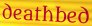
deathbed